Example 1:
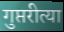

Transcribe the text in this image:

गुप्तरीत्या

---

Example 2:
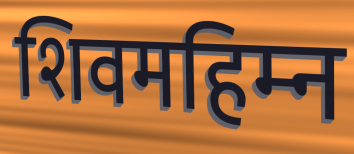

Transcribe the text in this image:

शिवमहिम्न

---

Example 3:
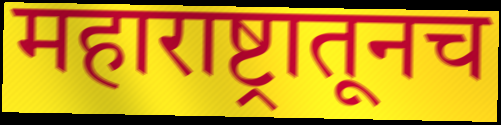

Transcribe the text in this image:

महाराष्ट्रातूनच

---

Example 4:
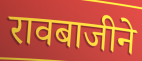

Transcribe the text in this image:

रावबाजीने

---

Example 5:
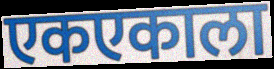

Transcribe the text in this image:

एकएकाला